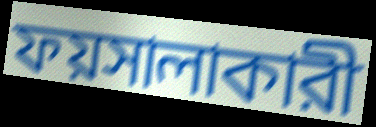
ফয়সালাকারী